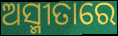
ଅସ୍ମୀତାରେ